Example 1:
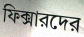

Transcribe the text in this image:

ফিক্সারদের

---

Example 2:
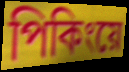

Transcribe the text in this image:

পিকিংয়ে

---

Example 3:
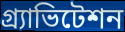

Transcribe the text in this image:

গ্র্যাভিটেশন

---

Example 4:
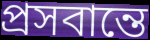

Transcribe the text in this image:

প্রসবান্তে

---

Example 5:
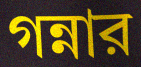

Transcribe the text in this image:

গন্নার